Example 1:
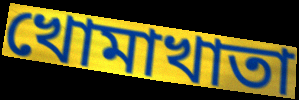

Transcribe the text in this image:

খোমাখাতা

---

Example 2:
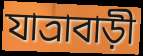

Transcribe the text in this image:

যাত্রাবাড়ী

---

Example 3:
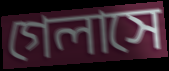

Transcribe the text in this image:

গেলাসে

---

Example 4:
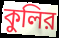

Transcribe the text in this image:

কুলির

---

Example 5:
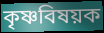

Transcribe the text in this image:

কৃষ্ণবিষয়ক